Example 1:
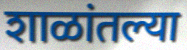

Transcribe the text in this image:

शाळांतल्या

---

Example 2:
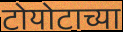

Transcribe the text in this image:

टोयोटाच्या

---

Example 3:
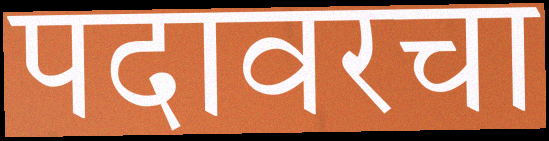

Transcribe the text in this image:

पदावरचा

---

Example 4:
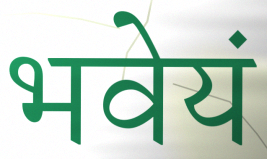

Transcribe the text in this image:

भवेयं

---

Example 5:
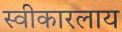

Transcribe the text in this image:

स्वीकारलाय